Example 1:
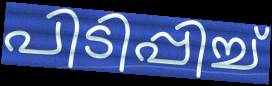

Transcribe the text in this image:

പിടിപ്പിച്ച്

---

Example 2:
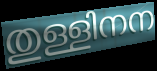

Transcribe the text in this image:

തുള്ളിനന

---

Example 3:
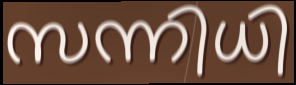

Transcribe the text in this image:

സന്നിധി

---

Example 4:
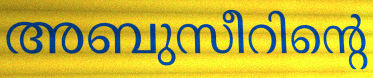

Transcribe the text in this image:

അബുസീറിന്റെ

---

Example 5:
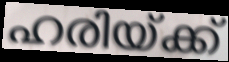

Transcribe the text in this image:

ഹരിയ്‌ക്ക്